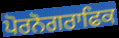
ਪੋਰਨੋਗਰਾਫਿਕ